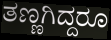
ತಣ್ಣಗಿದ್ದರೂ